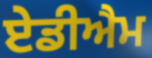
ਏਡੀਐਮ